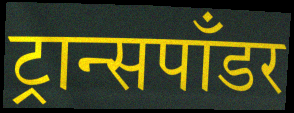
ट्रान्सपाँडर